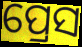
ପ୍ରେସ